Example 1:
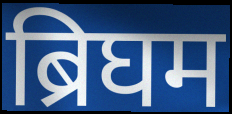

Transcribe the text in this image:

ब्रिघम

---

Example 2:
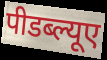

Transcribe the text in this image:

पीडब्ल्यूए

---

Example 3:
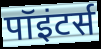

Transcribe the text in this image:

पॉइंटर्स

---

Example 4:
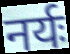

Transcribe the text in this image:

नर्यः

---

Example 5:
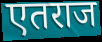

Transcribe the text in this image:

एतराज